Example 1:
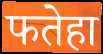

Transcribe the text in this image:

फतेहा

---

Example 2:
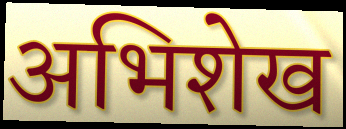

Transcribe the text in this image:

अभिशेख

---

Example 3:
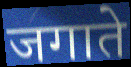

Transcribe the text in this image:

जगाते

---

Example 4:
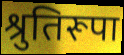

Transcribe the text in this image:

श्रुतिरूपा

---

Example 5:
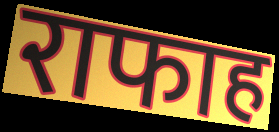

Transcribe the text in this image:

राफाह